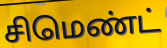
சிமெண்ட்